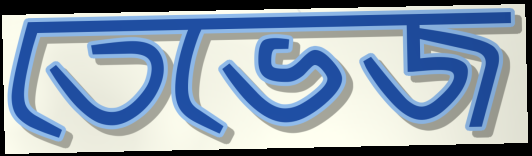
তেভেজ